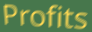
Profits